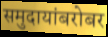
समुदायांबरोबर